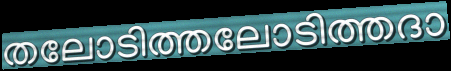
തലോടിത്തലോടിത്തദാ